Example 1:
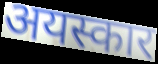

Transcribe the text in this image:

अयस्कार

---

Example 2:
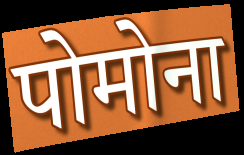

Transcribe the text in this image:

पोमोना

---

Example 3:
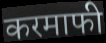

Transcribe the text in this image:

करमाफी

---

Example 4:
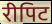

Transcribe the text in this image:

रीपिट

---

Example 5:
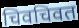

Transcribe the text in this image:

चिवचिवत